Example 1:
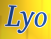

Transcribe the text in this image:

Lyo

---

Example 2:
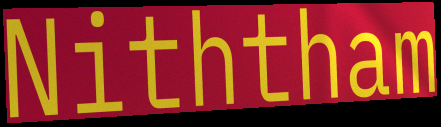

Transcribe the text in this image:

Niththam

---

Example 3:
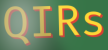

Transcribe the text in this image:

QIRs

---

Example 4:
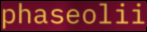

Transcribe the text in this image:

phaseolii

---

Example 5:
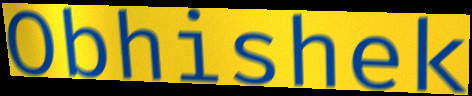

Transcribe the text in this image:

Obhishek